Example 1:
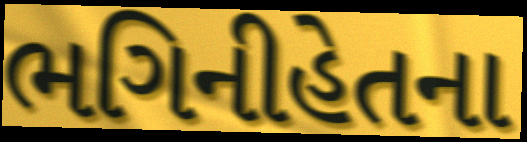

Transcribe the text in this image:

ભગિનીહેતના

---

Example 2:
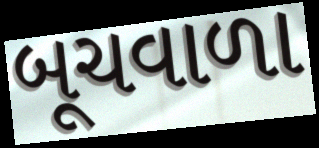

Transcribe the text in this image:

બૂચવાળા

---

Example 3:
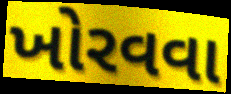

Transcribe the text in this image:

ખોરવવા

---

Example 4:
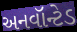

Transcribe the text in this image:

અનવૉન્ટેડ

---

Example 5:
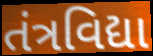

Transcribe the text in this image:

તંત્રવિદ્યા